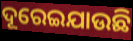
ଦୂରେଇଯାଉଛି